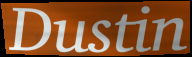
Dustin